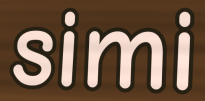
simi